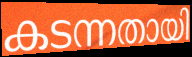
കടന്നതായി